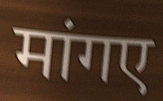
मांगए